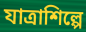
যাত্রাশিল্পে